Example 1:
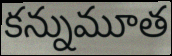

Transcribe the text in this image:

కన్నుమూత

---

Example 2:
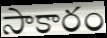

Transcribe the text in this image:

సాకారం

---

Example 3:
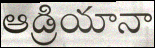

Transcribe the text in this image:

ఆడ్రియానా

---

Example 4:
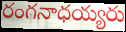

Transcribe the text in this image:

రంగనాధయ్యరు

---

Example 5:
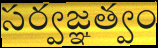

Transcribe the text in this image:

సర్వజ్ఞత్వం